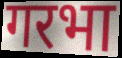
गरभा